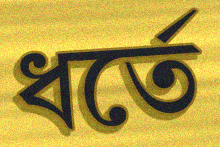
ধর্তে